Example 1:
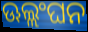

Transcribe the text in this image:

ଊଲ୍ଲଂଘନ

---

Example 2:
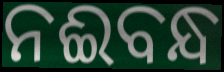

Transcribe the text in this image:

ନଈବନ୍ଧ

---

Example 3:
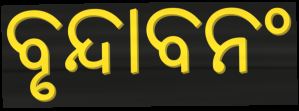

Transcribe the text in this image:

ବୃନ୍ଦାବନଂ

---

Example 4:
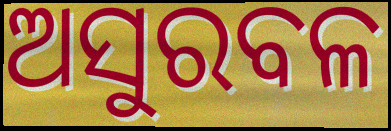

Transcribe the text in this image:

ଅସୁରବଳ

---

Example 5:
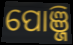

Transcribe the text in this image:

ପୋଞ୍ଜି